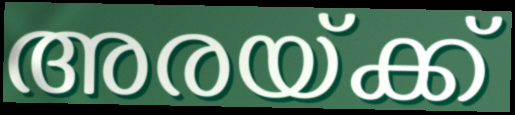
അരയ്‌ക്ക്